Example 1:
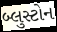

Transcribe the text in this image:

બ્લુસ્ટોન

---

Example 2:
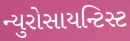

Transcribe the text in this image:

ન્યુરોસાયન્ટિસ્ટ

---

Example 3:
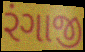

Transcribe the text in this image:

રંગાજી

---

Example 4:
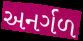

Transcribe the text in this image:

અનર્ગળ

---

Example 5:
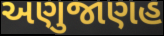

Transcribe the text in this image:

અણુજાણહ